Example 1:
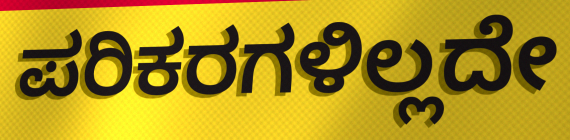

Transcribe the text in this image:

ಪರಿಕರಗಳಿಲ್ಲದೇ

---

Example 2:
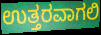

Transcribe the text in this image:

ಉತ್ತರವಾಗಲಿ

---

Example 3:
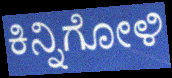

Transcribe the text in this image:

ಕಿನ್ನಿಗೋಳಿ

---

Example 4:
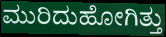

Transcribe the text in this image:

ಮುರಿದುಹೋಗಿತ್ತು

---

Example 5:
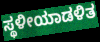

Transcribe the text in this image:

ಸ್ಥಳೀಯಾಡಳಿತ